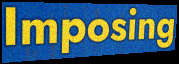
Imposing